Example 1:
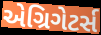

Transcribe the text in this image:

એગ્રિગેટર્સ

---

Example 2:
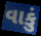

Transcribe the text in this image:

વાકું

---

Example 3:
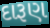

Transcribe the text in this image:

દારૂણ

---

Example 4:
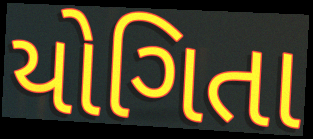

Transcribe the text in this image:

યોગિતા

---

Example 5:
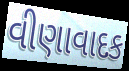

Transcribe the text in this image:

વીણાવાદક